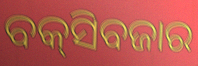
ବକ୍‍ସିବଜାର